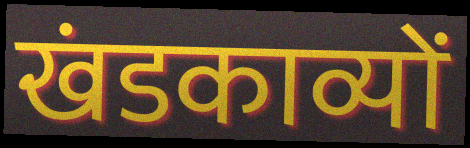
खंडकाव्यों